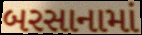
બરસાનામાં